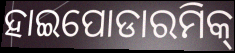
ହାଇପୋଡାରମିକ୍